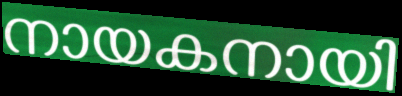
നായകനായി